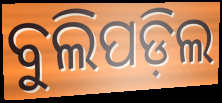
ବୁଲିପଡ଼ିଲ